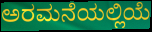
ಅರಮನೆಯಲ್ಲಿಯೆ